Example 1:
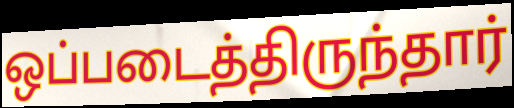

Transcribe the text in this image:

ஒப்படைத்திருந்தார்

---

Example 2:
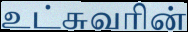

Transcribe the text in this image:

உட்சுவரின்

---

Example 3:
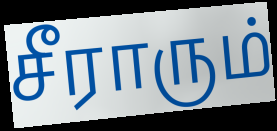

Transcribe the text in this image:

சீராரும்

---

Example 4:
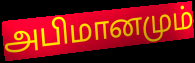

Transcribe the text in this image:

அபிமானமும்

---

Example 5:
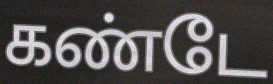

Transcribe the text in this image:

கண்டே